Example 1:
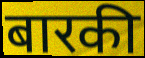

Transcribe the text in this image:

बारकी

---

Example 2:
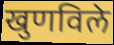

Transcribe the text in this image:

खुणविले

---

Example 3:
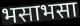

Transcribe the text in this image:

भसाभसा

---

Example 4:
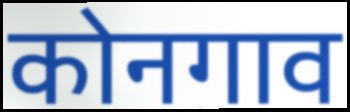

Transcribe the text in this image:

कोनगाव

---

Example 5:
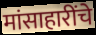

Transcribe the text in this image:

मांसाहारींचे